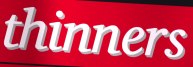
thinners